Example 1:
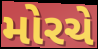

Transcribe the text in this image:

મોરચે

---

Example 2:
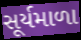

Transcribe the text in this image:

સૂર્યમાળા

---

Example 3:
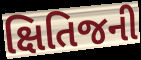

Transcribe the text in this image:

ક્ષિતિજની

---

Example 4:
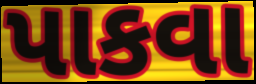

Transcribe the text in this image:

પાકવા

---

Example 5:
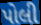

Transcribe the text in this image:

પોલી